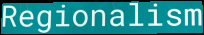
Regionalism